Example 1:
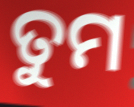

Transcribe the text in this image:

ତୁମ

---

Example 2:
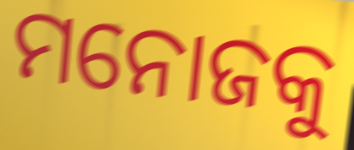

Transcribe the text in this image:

ମନୋଜକୁ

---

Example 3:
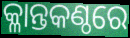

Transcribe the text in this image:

କ୍ଳାନ୍ତକଣ୍ଠରେ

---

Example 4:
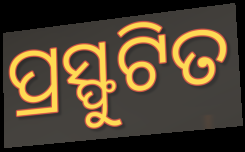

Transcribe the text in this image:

ପ୍ରସ୍ଫୁଟିତ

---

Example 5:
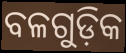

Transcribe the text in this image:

ବଳଗୁଡ଼ିକ